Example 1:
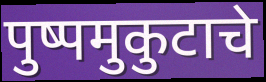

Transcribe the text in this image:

पुष्पमुकुटाचे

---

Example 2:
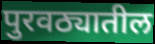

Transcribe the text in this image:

पुरवठ्यातील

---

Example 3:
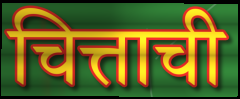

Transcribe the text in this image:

चित्ताची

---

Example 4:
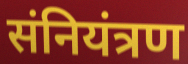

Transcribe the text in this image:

संनियंत्रण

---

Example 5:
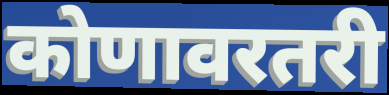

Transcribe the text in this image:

कोणावरतरी